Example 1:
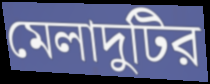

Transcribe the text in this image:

মেলাদুটির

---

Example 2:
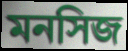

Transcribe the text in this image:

মনসিজ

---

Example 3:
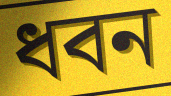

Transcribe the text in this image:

ধবন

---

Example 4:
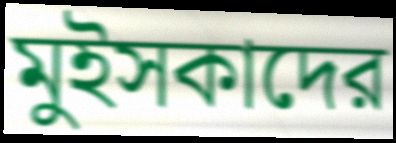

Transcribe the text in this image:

মুইসকাদের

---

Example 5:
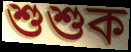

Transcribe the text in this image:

শুশুক